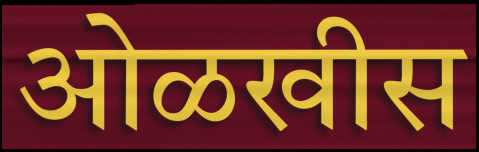
ओळखीस